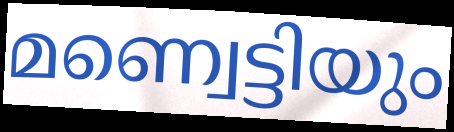
മണ്വെട്ടിയും